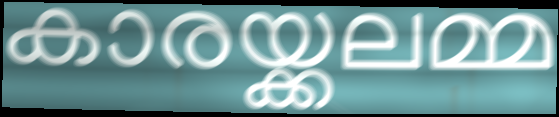
കാരയ്ക്കലമ്മ